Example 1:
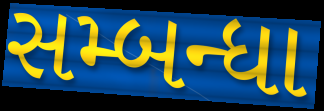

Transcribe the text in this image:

સમ્બન્ધા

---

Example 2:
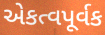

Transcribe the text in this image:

એકત્વપૂર્વક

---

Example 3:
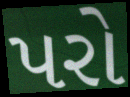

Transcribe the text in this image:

પરો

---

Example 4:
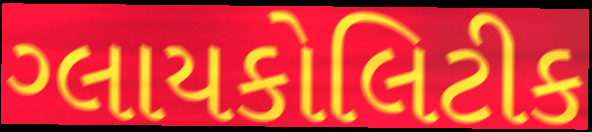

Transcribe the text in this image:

ગ્લાયકોલિટીક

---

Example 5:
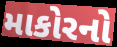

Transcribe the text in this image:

માકોરનો